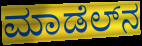
ಮಾಡೆಲ್‌ನ